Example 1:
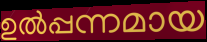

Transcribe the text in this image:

ഉൽപ്പന്നമായ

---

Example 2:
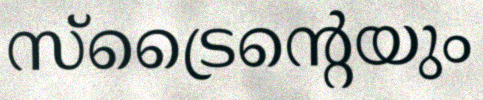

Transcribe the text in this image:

സ്ട്രൈന്റെയും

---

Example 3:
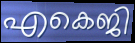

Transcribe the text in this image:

എകെജി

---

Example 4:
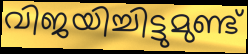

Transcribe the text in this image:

വിജയിച്ചിട്ടുമുണ്ട്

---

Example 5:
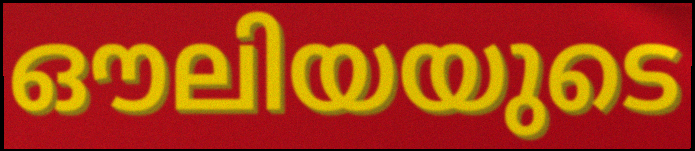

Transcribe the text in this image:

ഔലിയയുടെ